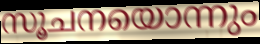
സൂചനയൊന്നും